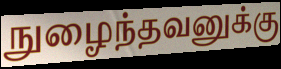
நுழைந்தவனுக்கு